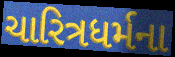
ચારિત્રધર્મના